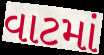
વાટમાં